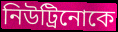
নিউট্রিনোকে